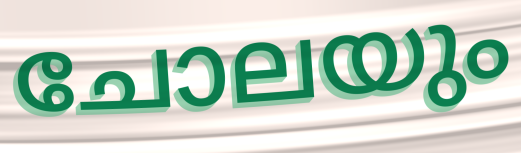
ചോലയും